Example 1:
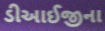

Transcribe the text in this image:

ડીઆઈજીના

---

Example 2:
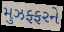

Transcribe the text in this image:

મુઝફ્ફરને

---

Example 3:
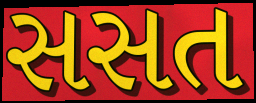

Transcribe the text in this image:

સસત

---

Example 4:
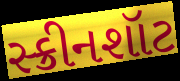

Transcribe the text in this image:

સ્ક્રીનશૉટ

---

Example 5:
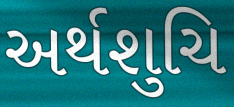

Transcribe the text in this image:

અર્થશુચિ